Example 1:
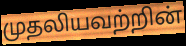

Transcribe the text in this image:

முதலியவற்றின்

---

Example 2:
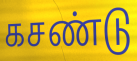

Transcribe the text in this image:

கசண்டு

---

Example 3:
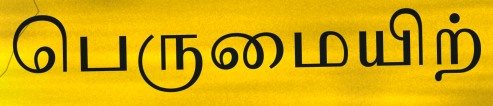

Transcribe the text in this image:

பெருமையிற்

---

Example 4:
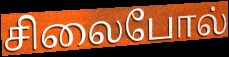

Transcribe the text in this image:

சிலைபோல்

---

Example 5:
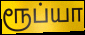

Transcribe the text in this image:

ரூப்யா